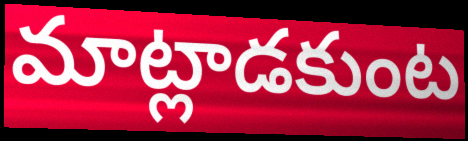
మాట్లాడకుంట